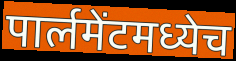
पार्लमेंटमध्येच